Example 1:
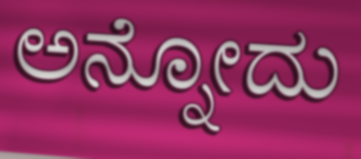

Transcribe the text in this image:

ಅನ್ನೋದು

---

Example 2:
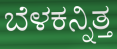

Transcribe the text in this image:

ಬೆಳಕನ್ನಿತ್ತ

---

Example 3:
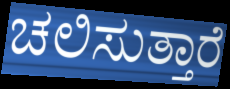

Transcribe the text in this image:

ಚಲಿಸುತ್ತಾರೆ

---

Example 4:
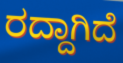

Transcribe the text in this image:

ರದ್ದಾಗಿದೆ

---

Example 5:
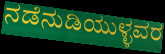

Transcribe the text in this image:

ನಡೆನುಡಿಯುಳ್ಳವರ